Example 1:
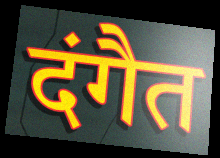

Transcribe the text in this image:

दंगैत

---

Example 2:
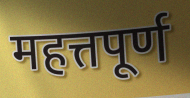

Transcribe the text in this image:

महत्तपूर्ण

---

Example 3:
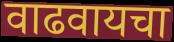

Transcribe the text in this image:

वाढवायचा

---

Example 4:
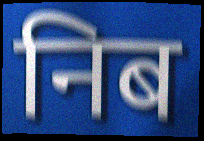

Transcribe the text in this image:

निब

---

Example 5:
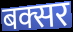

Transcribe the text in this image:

बक्‍सर